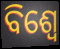
ବିଶ୍ଵେ